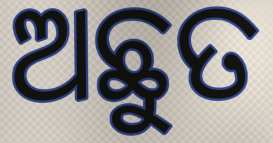
ଅଛୁତ